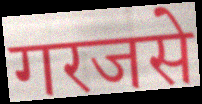
गरजसे